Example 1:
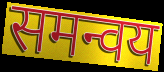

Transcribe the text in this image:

समन्वय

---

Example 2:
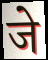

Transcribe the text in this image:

जे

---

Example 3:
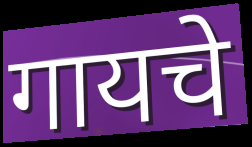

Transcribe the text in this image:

गायचे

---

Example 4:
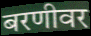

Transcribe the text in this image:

बरणीवर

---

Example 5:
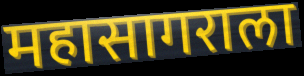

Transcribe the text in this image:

महासागराला